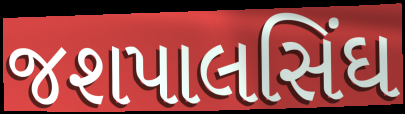
જશપાલસિંઘ